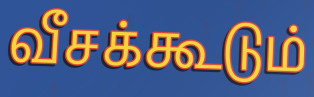
வீசக்கூடும்